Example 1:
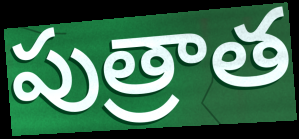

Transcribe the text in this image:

పుత్రాత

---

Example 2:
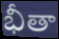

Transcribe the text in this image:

భీతా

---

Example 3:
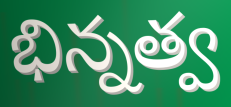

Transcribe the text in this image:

భిన్నత్వ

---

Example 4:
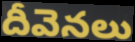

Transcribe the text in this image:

దీవెనలు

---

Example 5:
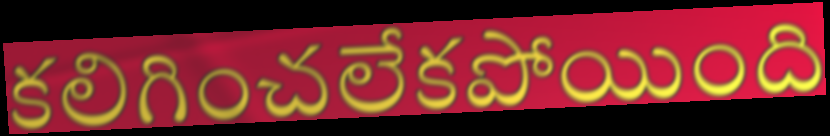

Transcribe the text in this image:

కలిగించలేకపోయింది